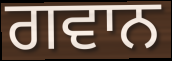
ਗਵਾਨ